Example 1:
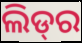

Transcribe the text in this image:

ଲିଡ୍‌ର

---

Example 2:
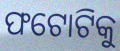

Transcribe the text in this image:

ଫଟୋଟିକୁ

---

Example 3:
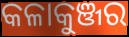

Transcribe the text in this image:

କଳାକୁଞ୍ଜର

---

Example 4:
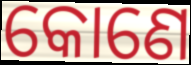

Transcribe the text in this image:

କୋଣେ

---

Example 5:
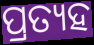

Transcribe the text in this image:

ପ୍ରତ୍ଯହ